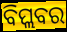
ବିପ୍ଲବର